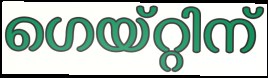
ഗെയ്റ്റിന്